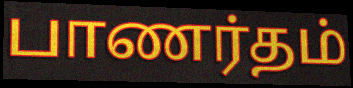
பாணர்தம்